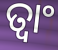
ତ୍ୱାଂ